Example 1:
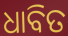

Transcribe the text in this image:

ଧାବିତ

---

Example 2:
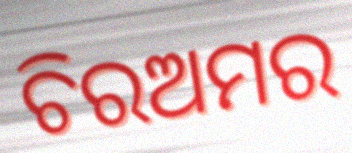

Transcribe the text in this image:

ଚିରଅମର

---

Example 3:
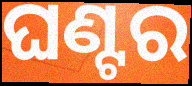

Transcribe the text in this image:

ଘଣ୍ଟର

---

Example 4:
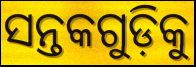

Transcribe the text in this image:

ସନ୍ତକଗୁଡ଼ିକୁ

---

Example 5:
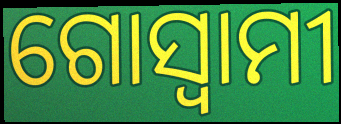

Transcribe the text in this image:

ଗୋସ୍ଵାମୀ